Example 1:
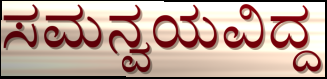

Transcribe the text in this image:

ಸಮನ್ವಯವಿದ್ದ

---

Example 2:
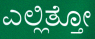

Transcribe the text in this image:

ಎಲ್ಲಿತ್ತೋ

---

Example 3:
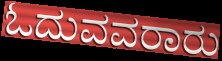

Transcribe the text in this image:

ಓದುವವರಾರು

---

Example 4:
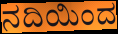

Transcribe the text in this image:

ನದಿಯಿಂದ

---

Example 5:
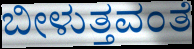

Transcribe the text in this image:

ಬೀಳುತ್ತವಂತೆ